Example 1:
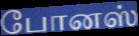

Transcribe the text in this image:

போனஸ்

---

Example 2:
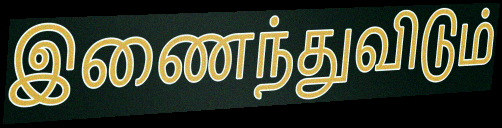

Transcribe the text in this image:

இணைந்துவிடும்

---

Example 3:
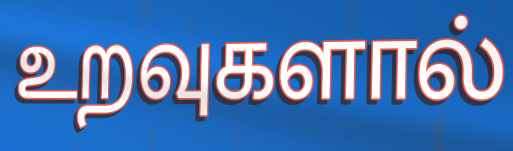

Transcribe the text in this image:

உறவுகளால்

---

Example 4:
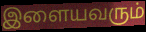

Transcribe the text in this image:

இளையவரும்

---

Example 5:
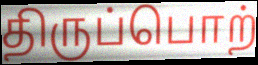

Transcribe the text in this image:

திருப்பொற்